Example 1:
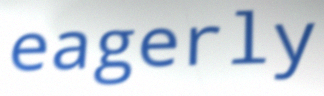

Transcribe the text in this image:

eagerly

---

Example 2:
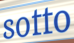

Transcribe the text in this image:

sotto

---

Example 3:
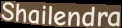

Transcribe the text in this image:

Shailendra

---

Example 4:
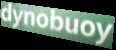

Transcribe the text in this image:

dynobuoy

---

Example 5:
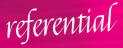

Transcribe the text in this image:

referential